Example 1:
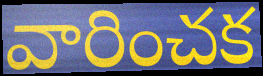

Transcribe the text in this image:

వారించక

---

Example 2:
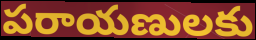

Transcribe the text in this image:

పరాయణులకు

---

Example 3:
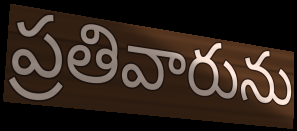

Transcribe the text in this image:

ప్రతివారును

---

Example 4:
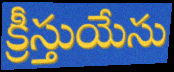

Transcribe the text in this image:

క్రీస్తుయేసు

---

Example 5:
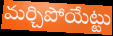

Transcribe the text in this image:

మర్చిపోయేట్టు